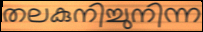
തലകുനിച്ചുനിന്ന